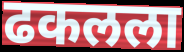
ढकलला